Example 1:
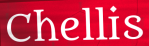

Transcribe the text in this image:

Chellis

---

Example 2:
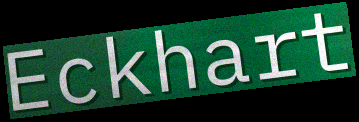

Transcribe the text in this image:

Eckhart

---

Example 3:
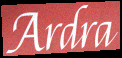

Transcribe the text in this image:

Ardra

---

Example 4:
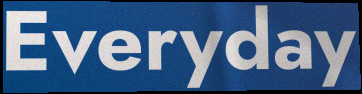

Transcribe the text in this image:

Everyday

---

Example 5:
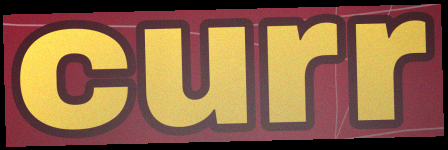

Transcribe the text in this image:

curr